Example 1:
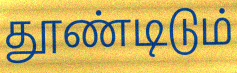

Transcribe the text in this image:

தூண்டிடும்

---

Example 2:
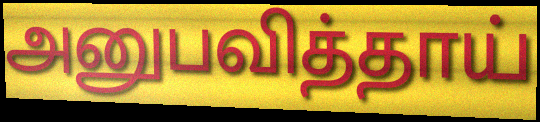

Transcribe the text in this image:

அனுபவித்தாய்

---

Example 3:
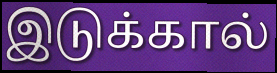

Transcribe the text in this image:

இடுக்கால்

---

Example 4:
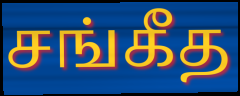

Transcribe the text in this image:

சங்கீத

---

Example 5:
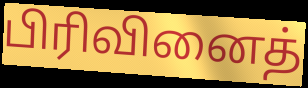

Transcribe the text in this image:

பிரிவினைத்